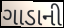
ગાડાની